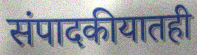
संपादकीयातही